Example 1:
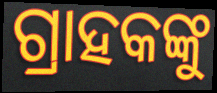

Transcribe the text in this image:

ଗ୍ରାହକଙ୍କୁ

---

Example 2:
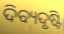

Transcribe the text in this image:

ଦିବ୍ୟଦୃଷ୍ଟି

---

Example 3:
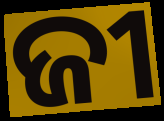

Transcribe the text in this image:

ଜୀ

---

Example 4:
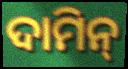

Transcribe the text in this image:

ଦାମିନ୍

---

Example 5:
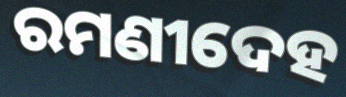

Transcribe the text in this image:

ରମଣୀଦେହ